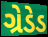
ગ્રેડેડ